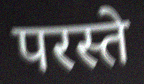
परस्ते